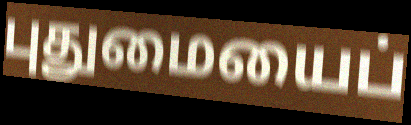
புதுமையைப்